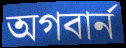
অগবার্ন